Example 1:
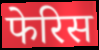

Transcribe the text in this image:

फेरिस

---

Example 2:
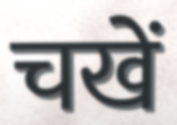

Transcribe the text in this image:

चखें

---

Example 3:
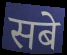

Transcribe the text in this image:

सबे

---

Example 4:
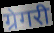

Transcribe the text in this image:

ग्रेगरी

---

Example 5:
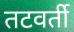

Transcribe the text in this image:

तटवर्ती